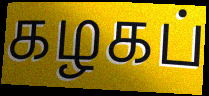
கழகப்